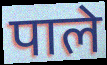
पाले